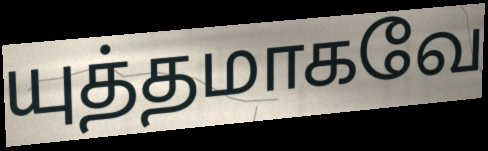
யுத்தமாகவே